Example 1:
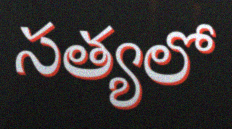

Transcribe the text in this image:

సత్యలో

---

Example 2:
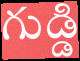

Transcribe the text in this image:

గుడ్డి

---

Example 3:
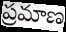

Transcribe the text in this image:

ప్రమాణ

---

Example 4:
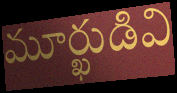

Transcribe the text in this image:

మూర్ఖుడివి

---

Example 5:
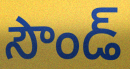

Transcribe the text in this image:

సౌండ్